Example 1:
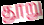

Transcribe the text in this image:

தூறு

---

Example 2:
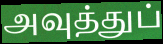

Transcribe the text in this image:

அவுத்துப்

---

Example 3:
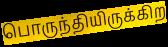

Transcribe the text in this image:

பொருந்தியிருக்கிற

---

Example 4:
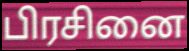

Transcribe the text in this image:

பிரசினை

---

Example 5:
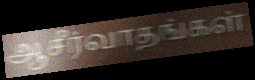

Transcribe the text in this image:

ஆசீர்வாதங்கள்